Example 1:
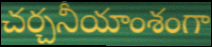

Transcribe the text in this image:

చర్చనీయాంశంగా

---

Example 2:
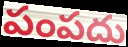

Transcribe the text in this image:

పంపదు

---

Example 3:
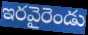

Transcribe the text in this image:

ఇరవైరెండు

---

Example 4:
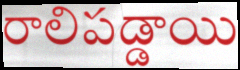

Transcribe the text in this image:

రాలిపడ్డాయి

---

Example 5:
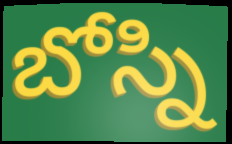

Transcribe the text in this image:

బోస్ని